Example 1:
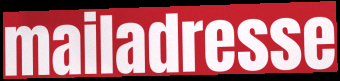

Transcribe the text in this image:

mailadresse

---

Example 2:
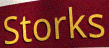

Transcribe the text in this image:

Storks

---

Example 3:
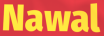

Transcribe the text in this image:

Nawal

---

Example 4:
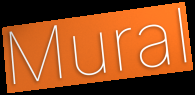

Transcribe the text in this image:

Mural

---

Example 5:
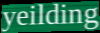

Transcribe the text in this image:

yeilding